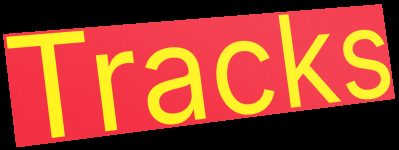
Tracks